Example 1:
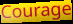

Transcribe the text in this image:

Courage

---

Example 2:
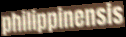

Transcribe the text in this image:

philippinensis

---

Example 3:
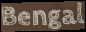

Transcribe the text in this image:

Bengal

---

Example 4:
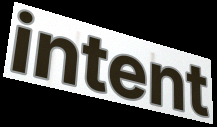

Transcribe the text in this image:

intent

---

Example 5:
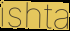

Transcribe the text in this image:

ishta